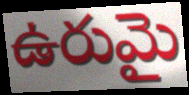
ఉరుమై